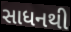
સાધનથી